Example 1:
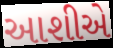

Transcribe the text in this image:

આશીએ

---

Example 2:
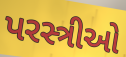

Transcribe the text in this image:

પરસ્ત્રીઓ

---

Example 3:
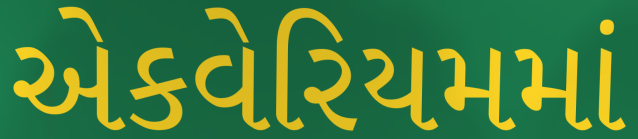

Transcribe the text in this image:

એકવેરિયમમાં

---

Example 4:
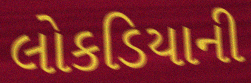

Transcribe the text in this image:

લોકડિયાની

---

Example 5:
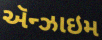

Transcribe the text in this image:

ઍન્ઝાઇમ